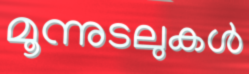
മൂന്നുടലുകൾ